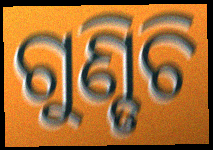
ଗୁଣ୍ଡିଚି